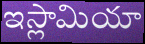
ఇస్లామియా